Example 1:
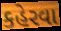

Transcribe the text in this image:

કહેરવા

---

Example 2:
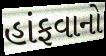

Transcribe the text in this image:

હાંફવાનો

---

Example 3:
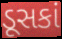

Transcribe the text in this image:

ડૂસકાં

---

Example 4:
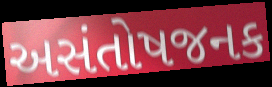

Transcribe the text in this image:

અસંતોષજનક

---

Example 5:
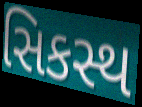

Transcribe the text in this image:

સિકસ્થ